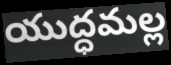
యుద్ధమల్ల